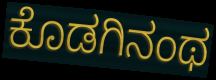
ಕೊಡಗಿನಂಥ